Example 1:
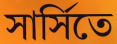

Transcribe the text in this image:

সার্সিতে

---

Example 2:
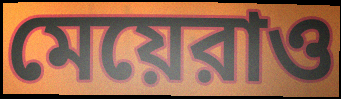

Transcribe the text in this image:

মেয়েরাও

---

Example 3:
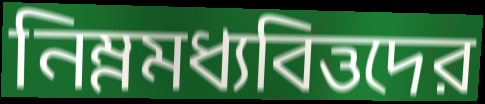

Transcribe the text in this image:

নিম্নমধ্যবিত্তদের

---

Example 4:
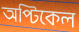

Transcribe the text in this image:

অপ্টিকেল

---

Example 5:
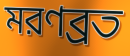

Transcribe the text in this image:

মরণব্রত